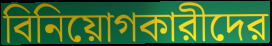
বিনিয়োগকারীদের